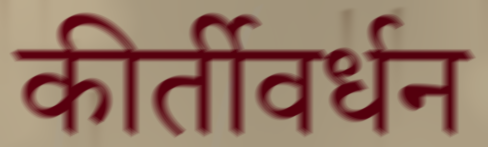
कीर्तीवर्धन